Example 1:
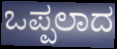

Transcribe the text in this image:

ಒಪ್ಪಲಾದ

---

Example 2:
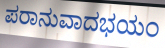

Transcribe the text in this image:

ಪರಾನುವಾದಭಯಂ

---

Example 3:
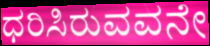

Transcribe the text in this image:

ಧರಿಸಿರುವವನೇ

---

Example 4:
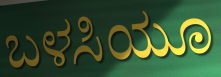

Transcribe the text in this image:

ಬಳಸಿಯೂ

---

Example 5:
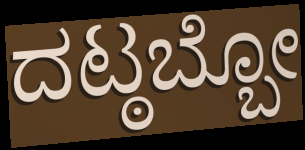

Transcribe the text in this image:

ದಟ್ಠಬ್ಬೋ